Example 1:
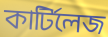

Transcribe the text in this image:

কার্টিলেজ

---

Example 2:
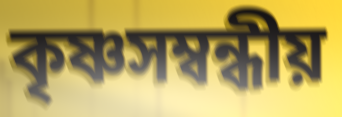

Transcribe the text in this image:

কৃষ্ণসম্বন্ধীয়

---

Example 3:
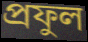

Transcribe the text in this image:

প্রফুল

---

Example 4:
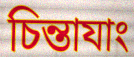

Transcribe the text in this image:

চিন্তাযাং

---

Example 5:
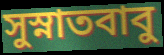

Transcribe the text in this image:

সুস্নাতবাবু